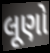
લૂણો